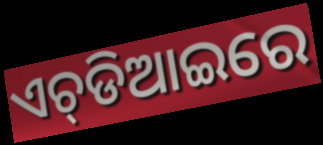
ଏଚ୍‌ଡିଆଇରେ